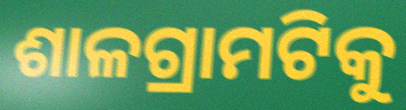
ଶାଳଗ୍ରାମଟିକୁ